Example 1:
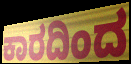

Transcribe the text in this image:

ಕಾರದಿಂದ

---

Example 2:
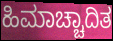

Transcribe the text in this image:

ಹಿಮಾಚ್ಚಾದಿತ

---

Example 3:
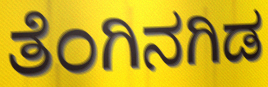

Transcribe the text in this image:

ತೆಂಗಿನಗಿಡ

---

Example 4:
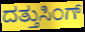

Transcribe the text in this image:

ದತ್ತುಸಿಂಗ್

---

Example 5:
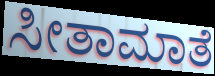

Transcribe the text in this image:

ಸೀತಾಮಾತೆ